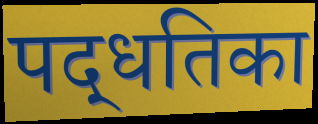
पद्धतिका